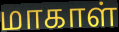
மாகாள்